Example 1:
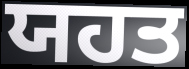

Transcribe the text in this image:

ਯਹਤ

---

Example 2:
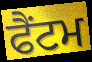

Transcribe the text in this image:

ਫੈਂਟਮ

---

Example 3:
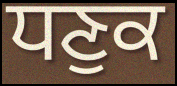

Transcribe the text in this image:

ਧਣੁਕ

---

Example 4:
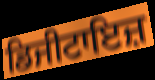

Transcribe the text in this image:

ਡਿਜੀਟਾਇਜ਼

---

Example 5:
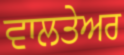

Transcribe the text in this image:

ਵਾਲਤੇਅਰ